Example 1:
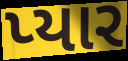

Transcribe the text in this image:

પ્યાર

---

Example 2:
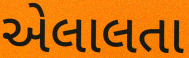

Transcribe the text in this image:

એલાલતા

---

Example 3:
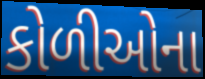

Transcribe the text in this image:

કોળીઓના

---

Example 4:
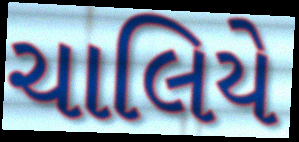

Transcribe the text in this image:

ચાલિયે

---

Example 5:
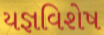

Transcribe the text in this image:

યજ્ઞવિશેષ